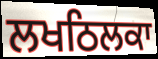
ਲਖਠਿਲਕਾ